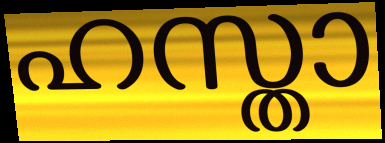
ഹസ്താ